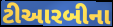
ટીઆરબીના